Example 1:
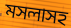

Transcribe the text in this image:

মসলাসহ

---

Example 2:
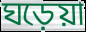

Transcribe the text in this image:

ঘড়েয়া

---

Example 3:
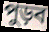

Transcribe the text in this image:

পুড়ব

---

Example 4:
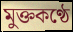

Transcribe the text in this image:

মুক্তকণ্ঠে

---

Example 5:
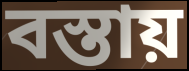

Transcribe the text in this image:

বস্তায়